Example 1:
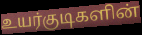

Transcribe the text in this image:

உயர்குடிகளின்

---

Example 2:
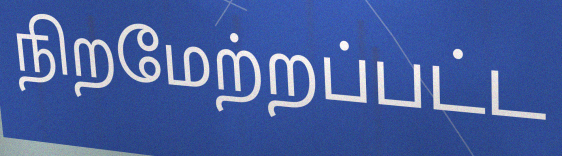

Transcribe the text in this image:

நிறமேற்றப்பட்ட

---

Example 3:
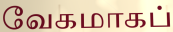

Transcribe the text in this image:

வேகமாகப்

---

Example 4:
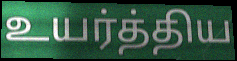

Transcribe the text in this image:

உயர்த்திய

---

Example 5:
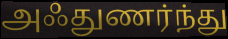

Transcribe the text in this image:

அஃதுணர்ந்து